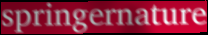
springernature